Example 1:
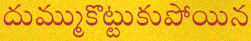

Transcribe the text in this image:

దుమ్ముకొట్టుకుపోయిన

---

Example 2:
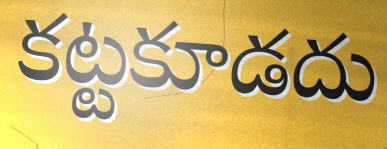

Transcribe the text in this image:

కట్టకూడదు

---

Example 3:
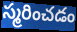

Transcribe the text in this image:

స్మరించడం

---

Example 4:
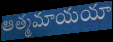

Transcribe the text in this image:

ఆత్మమాయయా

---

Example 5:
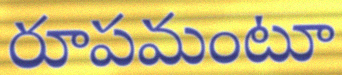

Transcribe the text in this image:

రూపమంటూ